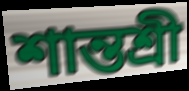
শান্তশ্রী